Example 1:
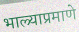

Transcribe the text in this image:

भाल्याप्रमाणे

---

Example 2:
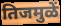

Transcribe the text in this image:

तिजमुळें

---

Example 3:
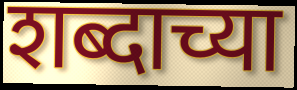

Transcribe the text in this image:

शब्दाच्या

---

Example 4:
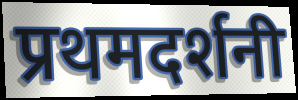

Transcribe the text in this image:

प्रथमदर्शनी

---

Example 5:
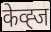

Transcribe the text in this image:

केव्ह्ज